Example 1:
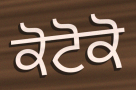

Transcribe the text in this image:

ਕੋਟੋਕੋ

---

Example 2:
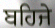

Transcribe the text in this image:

ਬਹਿਜੇ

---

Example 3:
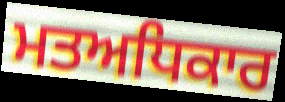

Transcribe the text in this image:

ਮਤਅਧਿਕਾਰ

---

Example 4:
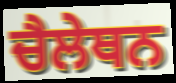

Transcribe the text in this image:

ਚੈਲੇਥਨ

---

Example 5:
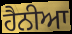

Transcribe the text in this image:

ਹੈਨੀਆ